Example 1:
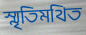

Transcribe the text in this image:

স্মৃতিমথিত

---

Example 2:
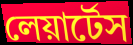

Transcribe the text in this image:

লেয়ার্টেস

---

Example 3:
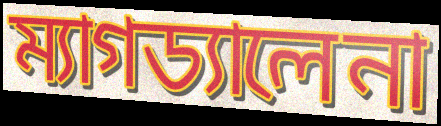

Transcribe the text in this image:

ম্যাগড্যালেনা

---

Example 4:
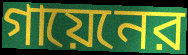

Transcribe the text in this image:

গায়েনের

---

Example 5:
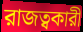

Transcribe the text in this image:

রাজত্বকারী